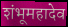
शंभूमहादेव